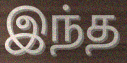
இந்த